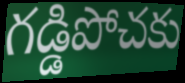
గడ్డిపోచకు